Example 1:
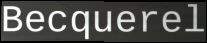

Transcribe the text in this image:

Becquerel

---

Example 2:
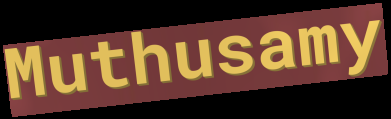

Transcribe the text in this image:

Muthusamy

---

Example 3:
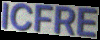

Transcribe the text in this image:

ICFRE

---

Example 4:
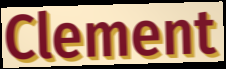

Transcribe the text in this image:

Clement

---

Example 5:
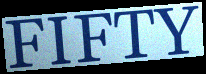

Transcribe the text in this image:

FIFTY